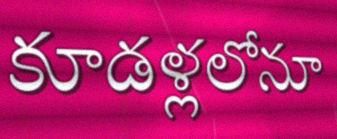
కూడళ్లలోనూ